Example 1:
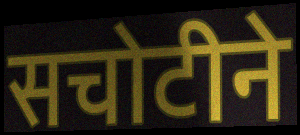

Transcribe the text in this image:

सचोटीने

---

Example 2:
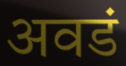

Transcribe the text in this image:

अवडं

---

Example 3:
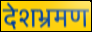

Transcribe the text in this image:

देशभ्रमण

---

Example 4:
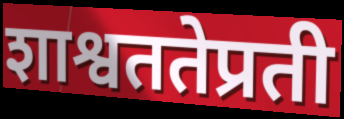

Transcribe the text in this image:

शाश्वततेप्रती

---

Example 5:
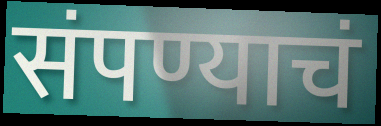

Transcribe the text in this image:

संपण्याचं